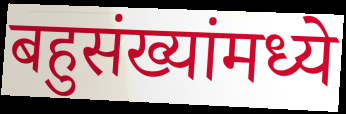
बहुसंख्यांमध्ये